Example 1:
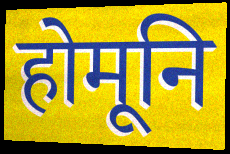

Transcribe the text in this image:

होमूनि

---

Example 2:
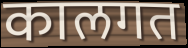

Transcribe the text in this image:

कालगत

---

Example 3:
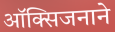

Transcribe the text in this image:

ऑक्सिजनाने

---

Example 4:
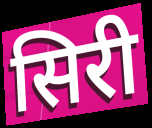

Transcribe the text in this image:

सिरी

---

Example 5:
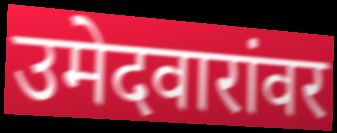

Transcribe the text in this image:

उमेदवारांवर